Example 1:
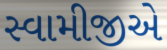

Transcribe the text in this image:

સ્વામીજીએ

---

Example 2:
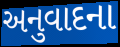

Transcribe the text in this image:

અનુવાદના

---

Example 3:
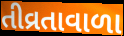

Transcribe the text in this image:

તીવ્રતાવાળા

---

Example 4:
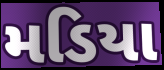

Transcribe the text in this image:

મડિયા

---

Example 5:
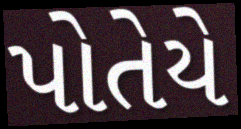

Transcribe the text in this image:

પોતેયે